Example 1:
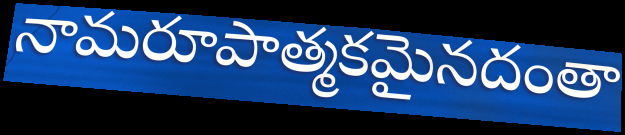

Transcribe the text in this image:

నామరూపాత్మకమైనదంతా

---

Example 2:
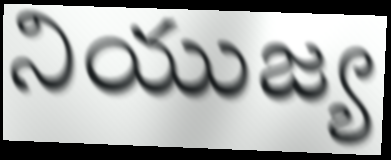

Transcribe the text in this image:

నియుజ్య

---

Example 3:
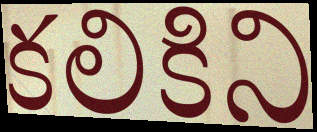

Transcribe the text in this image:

కలికిని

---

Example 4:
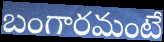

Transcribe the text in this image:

బంగారమంటే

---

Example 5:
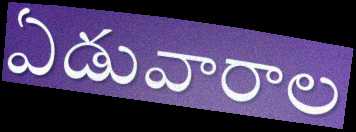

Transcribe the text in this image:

ఏడువారాల